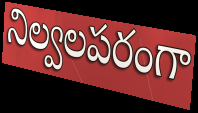
నిల్వలపరంగా